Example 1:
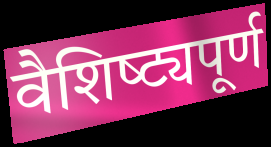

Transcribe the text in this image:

वैशिष्‍ट्यपूर्ण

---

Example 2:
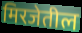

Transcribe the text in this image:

मिरजेतील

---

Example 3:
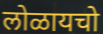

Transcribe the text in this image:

लोळायचो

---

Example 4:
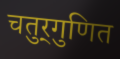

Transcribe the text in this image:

चतुर्गुणित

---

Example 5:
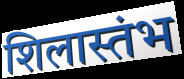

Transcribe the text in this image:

शिलास्तंभ